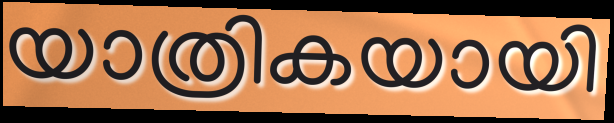
യാത്രികയായി